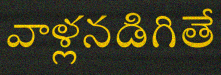
వాళ్లనడిగితే